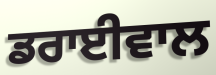
ਡਰਾਈਵਾਲ